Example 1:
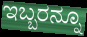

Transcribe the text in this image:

ಇಬ್ಬರನ್ನೂ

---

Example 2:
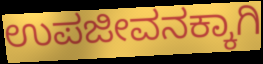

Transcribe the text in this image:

ಉಪಜೀವನಕ್ಕಾಗಿ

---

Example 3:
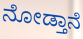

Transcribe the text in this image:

ನೋಡ್ತಾನೆ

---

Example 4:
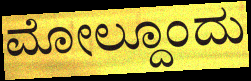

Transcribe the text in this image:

ಮೋಲ್ದೂಂದು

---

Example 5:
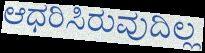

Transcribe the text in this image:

ಆಧರಿಸಿರುವುದಿಲ್ಲ